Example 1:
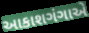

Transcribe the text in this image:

આકાશગંગાએ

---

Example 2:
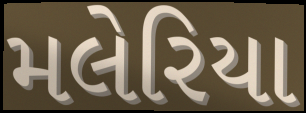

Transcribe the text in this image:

મલેરિયા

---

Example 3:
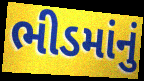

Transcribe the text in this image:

ભીડમાંનું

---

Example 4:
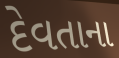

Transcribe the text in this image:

દેવતાના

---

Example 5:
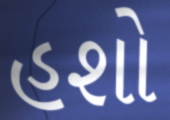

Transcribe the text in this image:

હશો